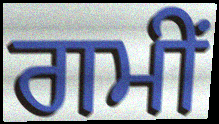
ਗਮੀਂ